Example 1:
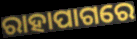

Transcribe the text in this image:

ରାହାପାଗରେ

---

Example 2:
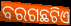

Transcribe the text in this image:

ବରଗଛଟିଏ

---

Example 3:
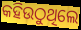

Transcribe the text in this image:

କହିଉଠୁଥିଲେ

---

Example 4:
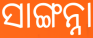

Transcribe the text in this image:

ସାଙ୍ଗନ୍ନା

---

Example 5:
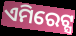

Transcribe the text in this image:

ଏମିରେଟ୍ସ